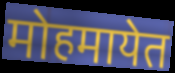
मोहमायेत